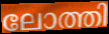
ലോത്തി